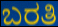
ಬರತಿ